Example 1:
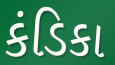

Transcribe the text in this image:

કંડિકા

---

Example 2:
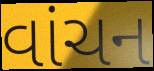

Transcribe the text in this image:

વાંચન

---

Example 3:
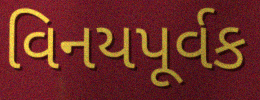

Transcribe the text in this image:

વિનયપૂર્વક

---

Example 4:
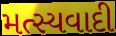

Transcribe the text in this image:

મત્સ્યવાદી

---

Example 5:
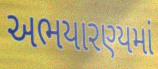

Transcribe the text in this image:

અભયારણ્યમાં